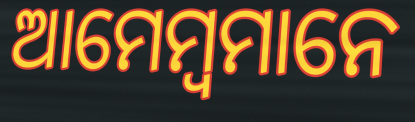
ଆମେମ୍ବମାନେ